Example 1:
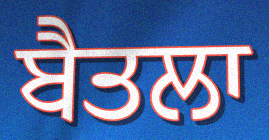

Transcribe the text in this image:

ਬੈਤਲਾ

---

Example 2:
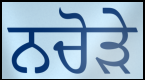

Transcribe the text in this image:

ਨਚੋੜੇ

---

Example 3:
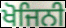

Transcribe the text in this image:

ਖੋਜਿਨੀ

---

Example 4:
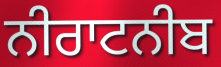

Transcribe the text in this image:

ਨੀਰਾਟਨੀਬ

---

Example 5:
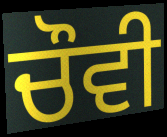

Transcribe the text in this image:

ਚੌਵੀ